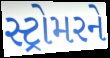
સ્ટ્રોમરને